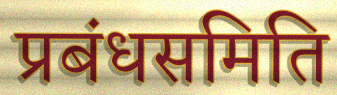
प्रबंधसमिति